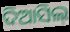
ଦିଆସିଲ୍